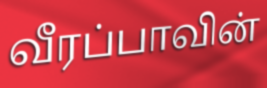
வீரப்பாவின்